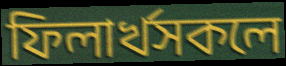
ফিলাৰ্খসকলে